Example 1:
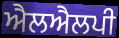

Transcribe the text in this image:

ਐਲਐਲਪੀ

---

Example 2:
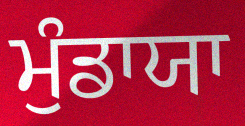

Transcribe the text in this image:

ਮੁੰਡਾਯਾ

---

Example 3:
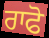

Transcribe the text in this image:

ਰਾਫੋ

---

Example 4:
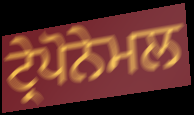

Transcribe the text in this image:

ਟ੍ਰੇਪੋਨੇਮਲ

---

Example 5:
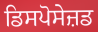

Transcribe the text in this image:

ਡਿਸਪੋਸੇਜ਼ਡ